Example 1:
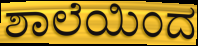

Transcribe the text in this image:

ಶಾಲೆಯಿಂದ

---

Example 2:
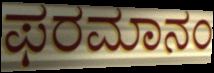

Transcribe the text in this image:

ಫರಮಾನಂ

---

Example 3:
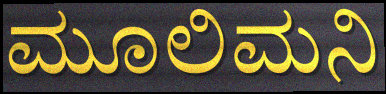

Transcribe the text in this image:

ಮೂಲಿಮನಿ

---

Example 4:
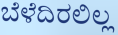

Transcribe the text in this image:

ಬೆಳೆದಿರಲಿಲ್ಲ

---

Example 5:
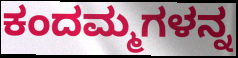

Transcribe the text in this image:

ಕಂದಮ್ಮಗಳನ್ನ